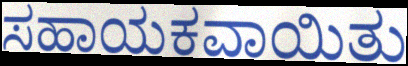
ಸಹಾಯಕವಾಯಿತು